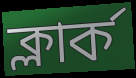
ক্লার্ক